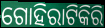
ଗୋହିରାଟିକିରି